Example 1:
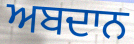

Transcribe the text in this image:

ਅਬਦਾਨ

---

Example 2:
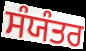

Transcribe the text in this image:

ਸੰਯੰਤਰ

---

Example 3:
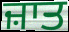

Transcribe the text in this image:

ਜ਼ਾਤ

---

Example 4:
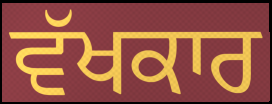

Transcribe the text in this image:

ਵੱਖਕਾਰ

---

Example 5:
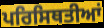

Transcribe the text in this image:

ਪਰਿਸਿਥਤੀਆਂ